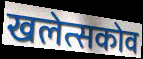
खलेत्सकोव